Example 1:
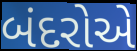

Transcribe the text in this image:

બંદરોએ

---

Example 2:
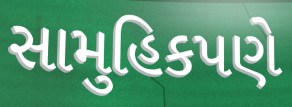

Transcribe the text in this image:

સામુહિકપણે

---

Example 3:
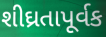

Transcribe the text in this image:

શીઘ્રતાપૂર્વક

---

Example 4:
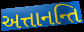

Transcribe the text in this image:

અત્તાનન્તિ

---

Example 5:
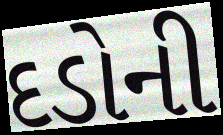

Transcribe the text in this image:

દડોની